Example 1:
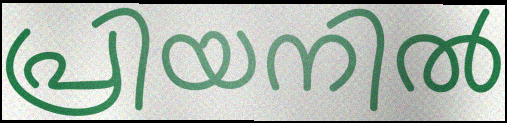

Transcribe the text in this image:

പ്രിയനിൽ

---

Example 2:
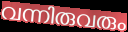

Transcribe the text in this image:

വന്നിരുവരും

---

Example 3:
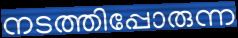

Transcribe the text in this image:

നടത്തിപ്പോരുന്ന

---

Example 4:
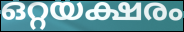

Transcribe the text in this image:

ഒറ്റയക്ഷരം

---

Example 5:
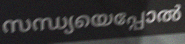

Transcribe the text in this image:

സന്ധ്യയെപ്പോൽ